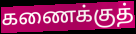
கணைக்குத்